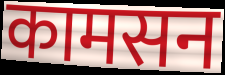
कामसन